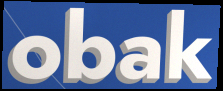
obak